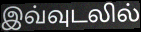
இவ்வுடலில்